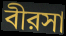
বীরসা